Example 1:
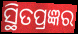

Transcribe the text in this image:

ସ୍ଥିତପ୍ରଜ୍ଞର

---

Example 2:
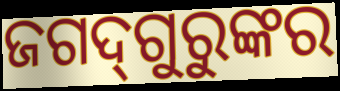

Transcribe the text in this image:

ଜଗଦ୍‌ଗୁରୁଙ୍କର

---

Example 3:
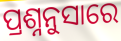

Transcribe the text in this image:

ପ୍ରଶ୍ନନୁସାରେ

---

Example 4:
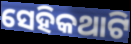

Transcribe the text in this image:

ସେହିକଥାଟି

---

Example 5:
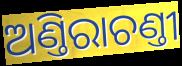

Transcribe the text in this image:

ଅଣ୍ତିରାଚଣ୍ତୀ